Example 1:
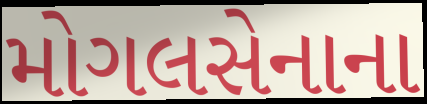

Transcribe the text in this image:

મોગલસેનાના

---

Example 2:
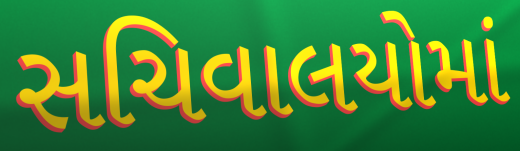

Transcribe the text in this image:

સચિવાલયોમાં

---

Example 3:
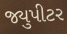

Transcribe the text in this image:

જ્યુપીટર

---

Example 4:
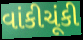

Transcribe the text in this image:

વાંકીચૂંકી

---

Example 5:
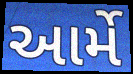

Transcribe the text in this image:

આર્મે